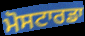
ਮੋਸਟਾਰਡਾ